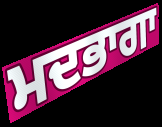
ਮਦਭਾਗਾ